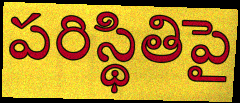
పరిస్థితిపై